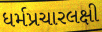
ધર્મપ્રચારલક્ષી